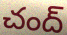
చంద్